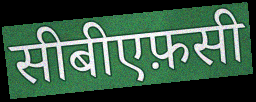
सीबीएफ़सी